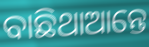
ବାଛିଥାଆନ୍ତେ